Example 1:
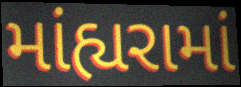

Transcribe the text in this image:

માંહ્યરામાં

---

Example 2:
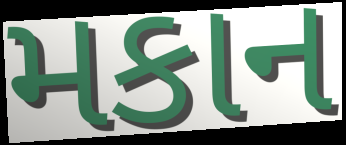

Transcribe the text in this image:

મકાન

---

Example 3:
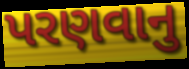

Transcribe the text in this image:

પરણવાનુ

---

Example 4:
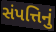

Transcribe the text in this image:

સંપત્તિનું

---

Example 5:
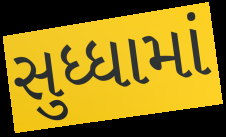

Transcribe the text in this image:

સુધ્ધામાં